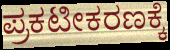
ಪ್ರಕಟೀಕರಣಕ್ಕೆ